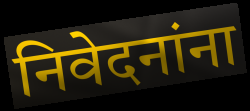
निवेदनांना